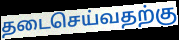
தடைசெய்வதற்கு